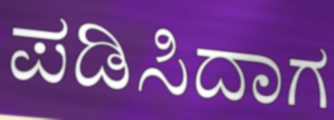
ಪಡಿಸಿದಾಗ